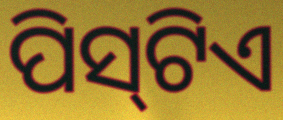
ପିସ୍‌ଟିଏ